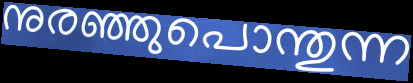
നുരഞ്ഞുപൊന്തുന്ന